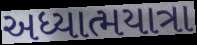
અધ્યાત્મયાત્રા